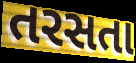
તરસતા